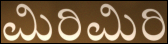
ಮಿರಿಮಿರಿ